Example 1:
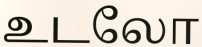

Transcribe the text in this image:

உடலோ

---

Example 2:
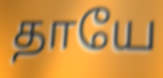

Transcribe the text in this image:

தாயே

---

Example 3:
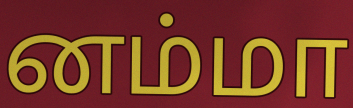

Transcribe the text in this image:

னம்மா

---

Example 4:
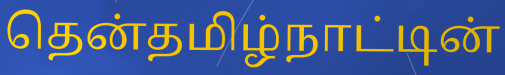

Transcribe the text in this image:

தென்தமிழ்நாட்டின்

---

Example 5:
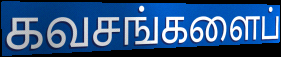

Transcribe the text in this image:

கவசங்களைப்